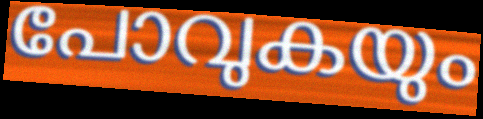
പോവുകയും